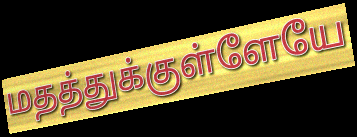
மதத்துக்குள்ளேயே